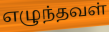
எழுந்தவள்